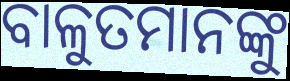
ବାଳୁତମାନଙ୍କୁ